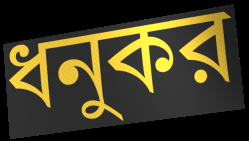
ধনুকর